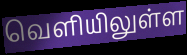
வெளியிலுள்ள